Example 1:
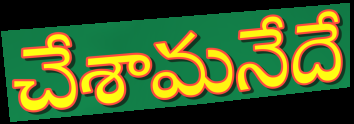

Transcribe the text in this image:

చేశామనేదే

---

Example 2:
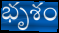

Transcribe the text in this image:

భృశం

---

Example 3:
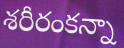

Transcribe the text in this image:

శరీరంకన్నా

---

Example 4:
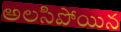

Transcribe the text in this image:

అలసిపోయిన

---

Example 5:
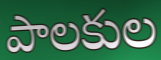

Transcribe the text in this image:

పాలకుల